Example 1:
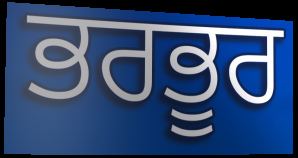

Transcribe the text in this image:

ਭਰਭੂਰ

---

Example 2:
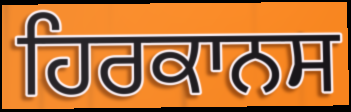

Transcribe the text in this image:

ਹਿਰਕਾਨਸ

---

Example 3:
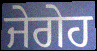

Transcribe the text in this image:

ਜੇਗੇਹ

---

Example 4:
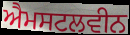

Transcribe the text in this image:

ਐਮਸਟਲਵੀਨ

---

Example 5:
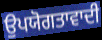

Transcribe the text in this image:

ਉਪਯੋਗਤਾਵਾਦੀ